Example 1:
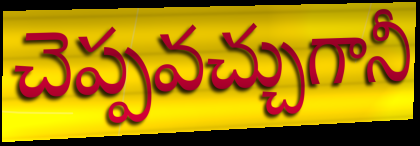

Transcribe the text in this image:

చెప్పవచ్చుగానీ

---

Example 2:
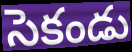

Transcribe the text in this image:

సెకండు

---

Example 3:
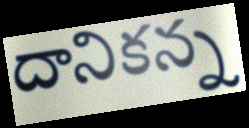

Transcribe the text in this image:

దానికన్న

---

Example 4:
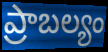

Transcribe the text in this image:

ప్రాబల్యం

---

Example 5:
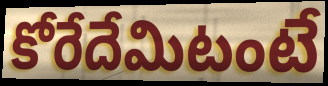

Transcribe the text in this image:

కోరేదేమిటంటే